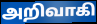
அறிவாகி